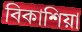
বিকাশিয়া